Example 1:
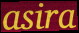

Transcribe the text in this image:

asira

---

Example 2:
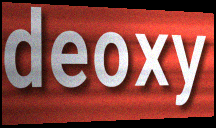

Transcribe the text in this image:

deoxy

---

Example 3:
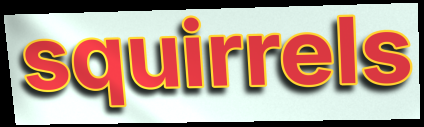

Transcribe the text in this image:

squirrels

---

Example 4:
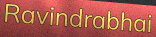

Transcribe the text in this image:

Ravindrabhai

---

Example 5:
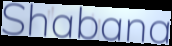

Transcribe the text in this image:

Shabana